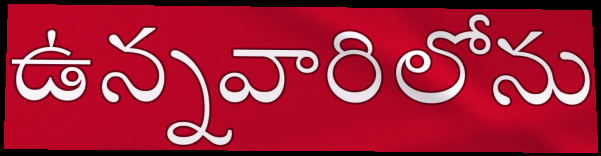
ఉన్నవారిలోను